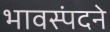
भावस्पंदने